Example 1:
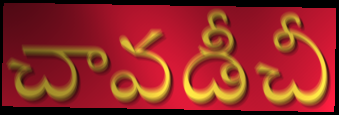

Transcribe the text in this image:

చావడీచీ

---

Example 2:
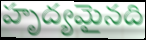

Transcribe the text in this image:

హృద్యమైనది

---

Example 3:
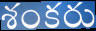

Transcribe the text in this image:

శంకరు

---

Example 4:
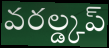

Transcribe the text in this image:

వరల్డ్కప్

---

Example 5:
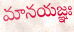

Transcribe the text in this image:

మానయజ్ఞః